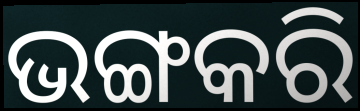
ଭଙ୍ଗକରି